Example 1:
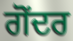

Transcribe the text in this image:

ਗੋਂਦਰ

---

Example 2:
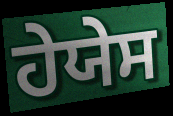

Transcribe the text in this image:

ਹੇਯੇਸ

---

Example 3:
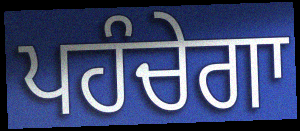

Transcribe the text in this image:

ਪਹੰਚੇਗਾ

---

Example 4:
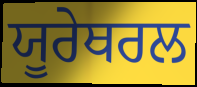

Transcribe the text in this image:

ਯੂਰੇਥਰਲ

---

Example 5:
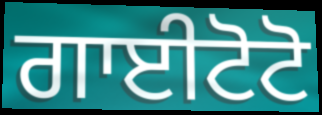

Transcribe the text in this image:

ਗਾਈਟੋਟੋ